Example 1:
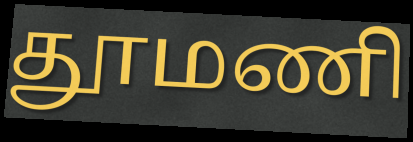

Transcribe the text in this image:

தூமணி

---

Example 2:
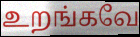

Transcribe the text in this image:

உறங்கவே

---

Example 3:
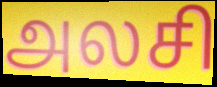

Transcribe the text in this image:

அலசி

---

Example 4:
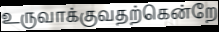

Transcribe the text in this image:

உருவாக்குவதற்கென்றே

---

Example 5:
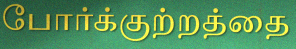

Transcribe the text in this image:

போர்க்குற்றத்தை